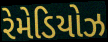
રેમેડિયોઝ